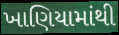
ખાણિયામાંથી